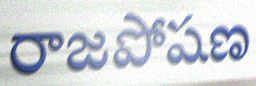
రాజపోషణ